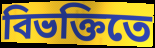
বিভক্তিতে